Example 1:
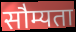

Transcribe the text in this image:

सौम्यता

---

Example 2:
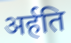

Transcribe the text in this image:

अर्हति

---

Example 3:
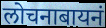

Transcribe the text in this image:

लोचनाबायनं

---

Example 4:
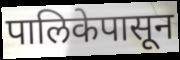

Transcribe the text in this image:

पालिकेपासून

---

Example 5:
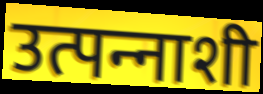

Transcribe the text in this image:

उत्पन्नाशी